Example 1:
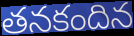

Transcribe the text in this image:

తనకందిన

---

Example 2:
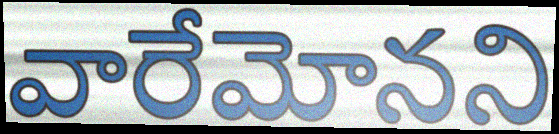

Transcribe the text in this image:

వారేమోనని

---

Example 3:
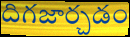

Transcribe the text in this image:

దిగజార్చడం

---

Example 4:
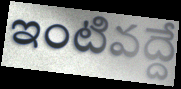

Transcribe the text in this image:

ఇంటివద్దే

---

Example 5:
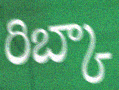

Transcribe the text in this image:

రిబ్కా